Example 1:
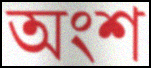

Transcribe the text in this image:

অংশ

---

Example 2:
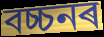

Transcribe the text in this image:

বচ্চনৰ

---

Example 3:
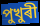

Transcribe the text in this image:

পুখুৰী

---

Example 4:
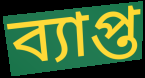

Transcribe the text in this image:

ব্যাপ্ত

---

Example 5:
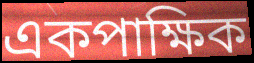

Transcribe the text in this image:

একপাক্ষিক